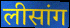
लीसांग